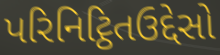
પરિનિટ્ઠિતઉદ્દેસો